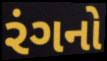
રંગનો